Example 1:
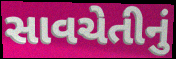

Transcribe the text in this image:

સાવચેતીનું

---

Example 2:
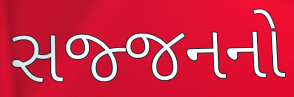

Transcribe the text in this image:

સજ્જનનો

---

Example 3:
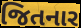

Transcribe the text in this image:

જિતનાર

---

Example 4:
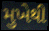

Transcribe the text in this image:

મુખેથી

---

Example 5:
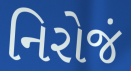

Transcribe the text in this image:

નિરોજં